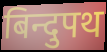
बिन्दुपथ